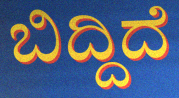
ಬಿದ್ದಿದೆ